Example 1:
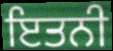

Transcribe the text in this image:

ਇਤਨੀ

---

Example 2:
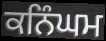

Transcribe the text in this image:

ਕਨਿੰਘਮ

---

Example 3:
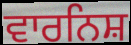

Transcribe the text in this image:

ਵਾਰਨਿਸ਼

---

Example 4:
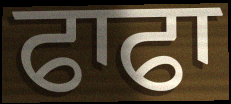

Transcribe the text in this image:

ਫਾਫਾ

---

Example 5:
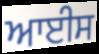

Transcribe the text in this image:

ਆਈਸ